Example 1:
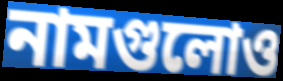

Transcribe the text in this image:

নামগুলোও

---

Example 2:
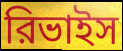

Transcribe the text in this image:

রিভাইস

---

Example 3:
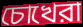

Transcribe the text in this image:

চোখেরা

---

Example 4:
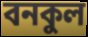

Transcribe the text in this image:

বনকুল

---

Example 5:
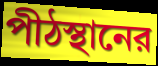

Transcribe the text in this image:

পীঠস্থানের